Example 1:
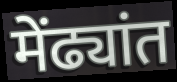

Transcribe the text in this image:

मेंढ्यांत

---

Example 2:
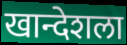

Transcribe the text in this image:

खान्देशला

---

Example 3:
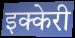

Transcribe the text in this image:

इक्केरी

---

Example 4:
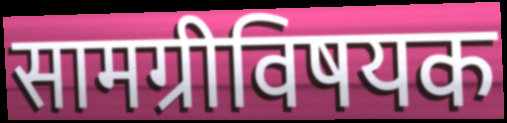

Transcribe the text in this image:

सामग्रीविषयक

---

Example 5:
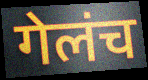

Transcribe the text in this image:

गेलंच